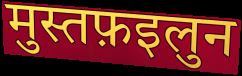
मुस्तफ़इलुन